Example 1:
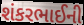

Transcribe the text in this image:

શંકરભાઈની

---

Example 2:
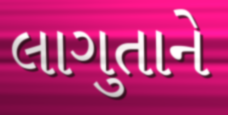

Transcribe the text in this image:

લાગુતાને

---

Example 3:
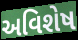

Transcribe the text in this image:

અવિશેષ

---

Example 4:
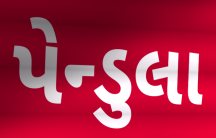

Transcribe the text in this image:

પેન્ડુલા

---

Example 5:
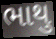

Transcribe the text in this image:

ભાથુ